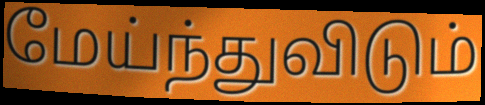
மேய்ந்துவிடும்